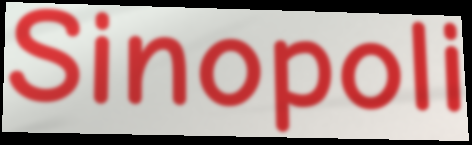
Sinopoli